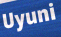
Uyuni